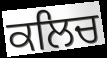
ਕਲਿਚ